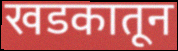
खडकातून